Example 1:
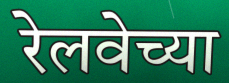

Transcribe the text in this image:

रेलवेच्या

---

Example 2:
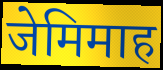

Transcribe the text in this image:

जेमिमाह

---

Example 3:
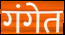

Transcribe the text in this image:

गंगेत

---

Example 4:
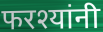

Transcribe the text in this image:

फरश्यांनी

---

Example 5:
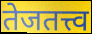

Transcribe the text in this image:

तेजतत्त्व